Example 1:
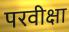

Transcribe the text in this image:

परवीक्षा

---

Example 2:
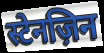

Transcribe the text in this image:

स्टेनज़िन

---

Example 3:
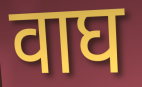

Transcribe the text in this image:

वाघ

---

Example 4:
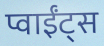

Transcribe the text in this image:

प्वाईंट्स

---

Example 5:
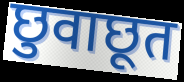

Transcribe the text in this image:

छुवाछूत